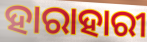
ହାରାହାରୀ